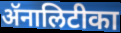
ॲनालिटीका